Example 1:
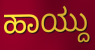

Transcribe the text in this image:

ಹಾಯ್ದು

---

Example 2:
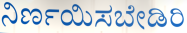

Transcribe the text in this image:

ನಿರ್ಣಯಿಸಬೇಡಿರಿ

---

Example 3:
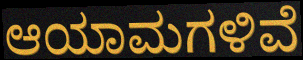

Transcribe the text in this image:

ಆಯಾಮಗಳಿವೆ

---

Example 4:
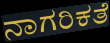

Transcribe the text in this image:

ನಾಗರಿಕತೆ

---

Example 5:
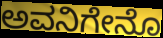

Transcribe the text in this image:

ಅವನಿಗೇನೊ